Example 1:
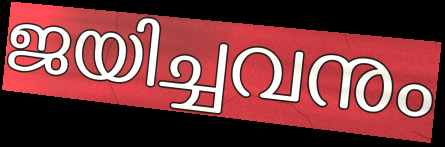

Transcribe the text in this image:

ജയിച്ചവനും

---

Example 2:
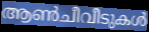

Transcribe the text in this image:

ആൺചീവീടുകൾ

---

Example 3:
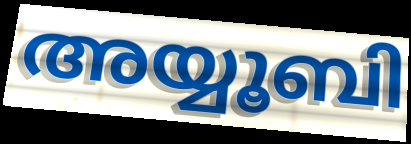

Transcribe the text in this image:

അയ്യൂബി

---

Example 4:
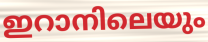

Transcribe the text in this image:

ഇറാനിലെയും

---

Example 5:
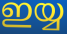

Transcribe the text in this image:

ഇയ്യ